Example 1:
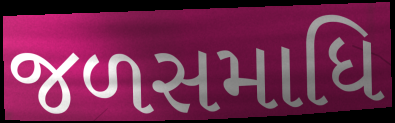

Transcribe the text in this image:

જળસમાધિ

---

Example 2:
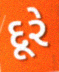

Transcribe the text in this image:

દૂરે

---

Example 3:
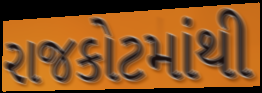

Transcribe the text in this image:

રાજકોટમાંથી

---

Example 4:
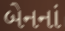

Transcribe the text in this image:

બેનનાં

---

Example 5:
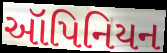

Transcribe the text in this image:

ઑપિનિયન